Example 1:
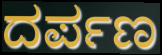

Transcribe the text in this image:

ದರ್ಪಣ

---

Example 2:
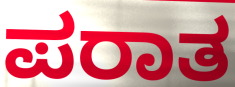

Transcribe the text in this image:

ಪರಾತ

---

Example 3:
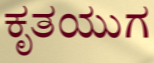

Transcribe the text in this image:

ಕೃತಯುಗ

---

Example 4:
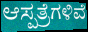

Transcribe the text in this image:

ಆಸ್ಪತ್ರೆಗಳಿವೆ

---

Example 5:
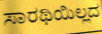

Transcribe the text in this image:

ಸಾರಥಿಯಿಲ್ಲದ